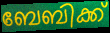
ബേബിക്ക്